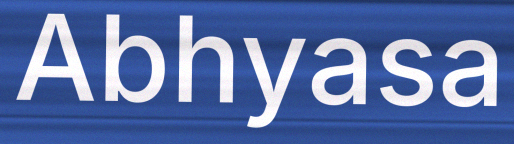
Abhyasa